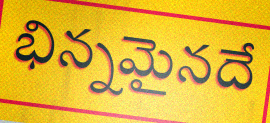
భిన్నమైనదే